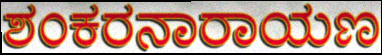
ಶಂಕರನಾರಾಯಣ